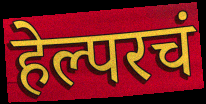
हेल्परचं